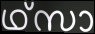
ഥ്സാ